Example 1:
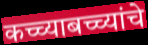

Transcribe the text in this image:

कच्च्याबच्च्यांचे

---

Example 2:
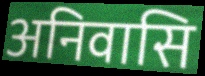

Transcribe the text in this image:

अनिवासि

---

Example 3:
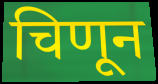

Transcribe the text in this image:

चिणून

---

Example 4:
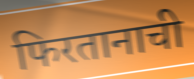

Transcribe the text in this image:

फिरतानाची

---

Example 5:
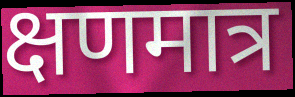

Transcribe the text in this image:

क्षणमात्र